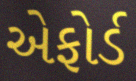
એફોર્ડ